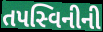
તપસ્વિનીની